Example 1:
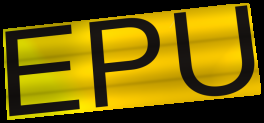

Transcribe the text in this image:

EPU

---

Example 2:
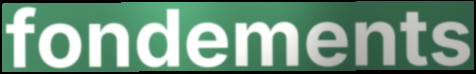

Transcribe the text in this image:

fondements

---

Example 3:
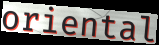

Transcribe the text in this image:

oriental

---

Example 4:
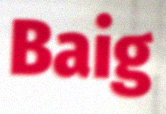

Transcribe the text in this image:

Baig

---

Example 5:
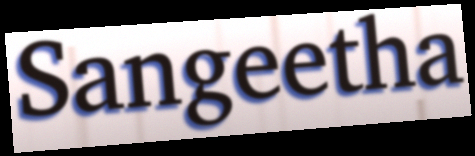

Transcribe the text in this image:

Sangeetha